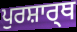
ਪੁਰਸ਼ਾਰ੍ਥ